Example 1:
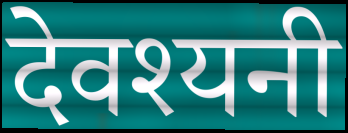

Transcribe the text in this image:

देवश्यनी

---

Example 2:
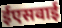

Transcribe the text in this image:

ईएसवाई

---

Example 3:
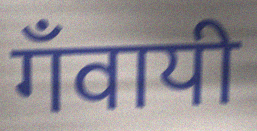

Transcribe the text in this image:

गँवायी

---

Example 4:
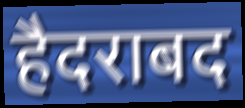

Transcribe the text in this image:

हैदराबद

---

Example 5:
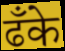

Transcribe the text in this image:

ढँके